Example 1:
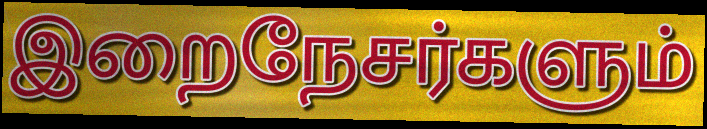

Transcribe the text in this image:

இறைநேசர்களும்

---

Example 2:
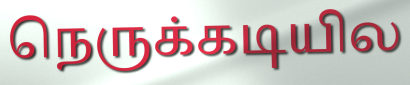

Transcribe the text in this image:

நெருக்கடியில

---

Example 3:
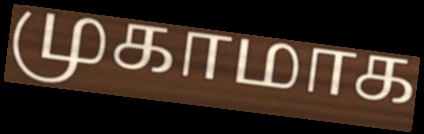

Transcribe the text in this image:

முகாமாக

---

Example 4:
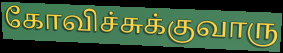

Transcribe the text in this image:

கோவிச்சுக்குவாரு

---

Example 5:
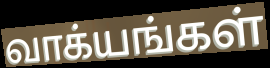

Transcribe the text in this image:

வாக்யங்கள்